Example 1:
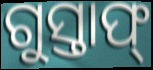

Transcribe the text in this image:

ଗୁସ୍ତାଫ୍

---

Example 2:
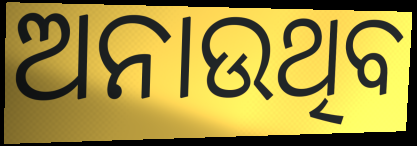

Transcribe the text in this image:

ଅନାଉଥିବ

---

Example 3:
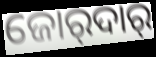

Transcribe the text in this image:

ଜୋର୍‍ଦାର୍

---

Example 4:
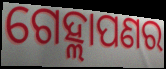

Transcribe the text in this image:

ଗେହ୍ଲାପଣର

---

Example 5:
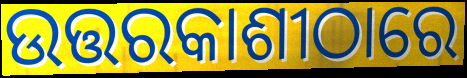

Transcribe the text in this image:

ଉତ୍ତରକାଶୀଠାରେ